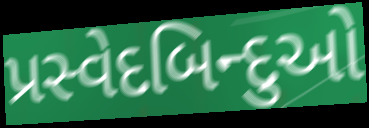
પ્રસ્વેદબિન્દુઓ